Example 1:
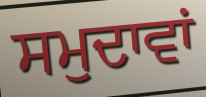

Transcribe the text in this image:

ਸਮੁਦਾਵਾਂ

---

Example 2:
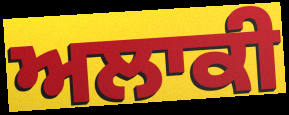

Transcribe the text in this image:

ਅਲਾਕੀ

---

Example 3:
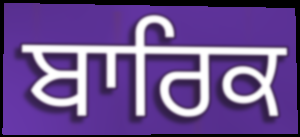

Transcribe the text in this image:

ਬਾਰਿਕ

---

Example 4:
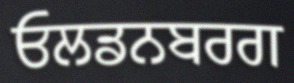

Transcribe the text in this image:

ਓਲਡਨਬਰਗ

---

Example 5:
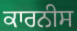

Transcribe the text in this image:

ਕਾਰਨੀਸ